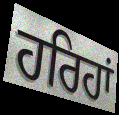
ਹਰਿਹਾਂ